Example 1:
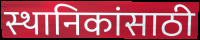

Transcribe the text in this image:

स्थानिकांसाठी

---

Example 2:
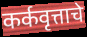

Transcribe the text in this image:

कर्कवृत्ताचे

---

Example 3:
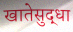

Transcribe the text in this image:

खातेसुद्धा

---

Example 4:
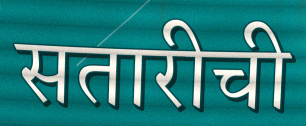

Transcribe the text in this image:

सतारीची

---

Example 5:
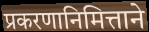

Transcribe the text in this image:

प्रकरणानिमित्ताने